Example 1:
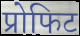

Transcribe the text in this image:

प्रोफिट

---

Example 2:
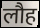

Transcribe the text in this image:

लौह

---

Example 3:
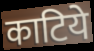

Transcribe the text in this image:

काटिये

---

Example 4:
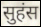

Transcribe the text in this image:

सुहंस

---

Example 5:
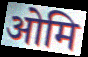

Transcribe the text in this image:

ओमि